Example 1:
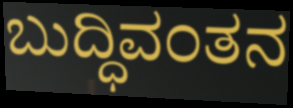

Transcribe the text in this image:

ಬುದ್ಧಿವಂತನ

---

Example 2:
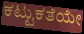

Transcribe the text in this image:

ಕಟ್ಟುಕತೆಯೇ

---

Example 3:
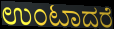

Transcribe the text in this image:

ಉಂಟಾದರೆ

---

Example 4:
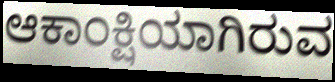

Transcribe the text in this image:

ಆಕಾಂಕ್ಷಿಯಾಗಿರುವ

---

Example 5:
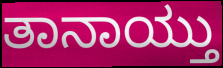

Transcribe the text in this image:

ತಾನಾಯ್ತು